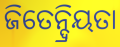
ଜିତେନ୍ଦ୍ରିୟତା